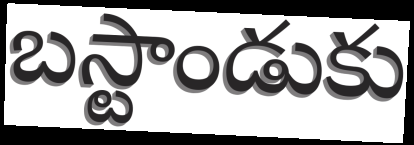
బస్టాండుకు